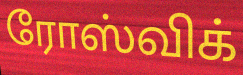
ரோஸ்விக்